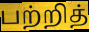
பற்றித்